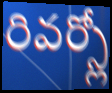
రివర్స్లో